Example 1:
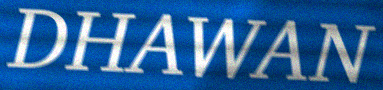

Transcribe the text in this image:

DHAWAN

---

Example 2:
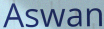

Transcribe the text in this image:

Aswan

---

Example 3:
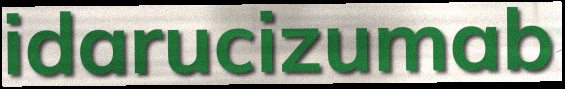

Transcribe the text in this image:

idarucizumab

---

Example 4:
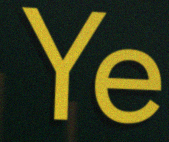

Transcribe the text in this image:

Ye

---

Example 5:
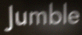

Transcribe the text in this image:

Jumble